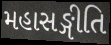
મહાસઙ્ગીતિ